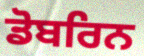
ਡੋਬਰਿਨ